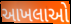
આખલાઓ